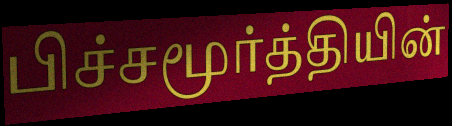
பிச்சமூர்த்தியின்